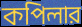
কপিলার